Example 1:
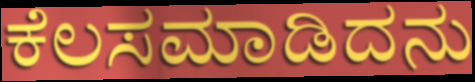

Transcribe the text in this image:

ಕೆಲಸಮಾಡಿದನು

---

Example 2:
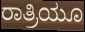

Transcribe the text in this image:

ರಾತ್ರಿಯೂ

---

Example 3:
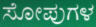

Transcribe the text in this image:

ಸೋಪುಗಳ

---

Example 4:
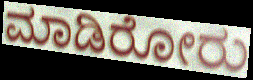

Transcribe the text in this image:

ಮಾಡಿರೋರು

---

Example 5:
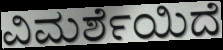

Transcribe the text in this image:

ವಿಮರ್ಶೆಯಿದೆ